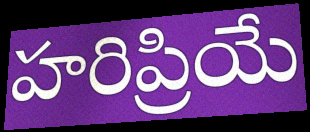
హరిప్రియే